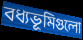
বধ্যভূমিগুলো